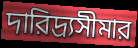
দারিদ্র্যসীমার